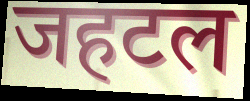
जहटल